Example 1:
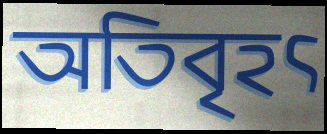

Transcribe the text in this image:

অতিবৃহৎ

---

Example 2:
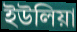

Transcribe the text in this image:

ইউলিয়া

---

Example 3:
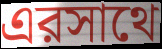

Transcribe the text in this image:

এরসাথে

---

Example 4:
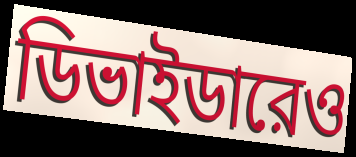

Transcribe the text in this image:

ডিভাইডারেও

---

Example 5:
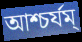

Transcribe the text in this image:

আশ্চর্যম্